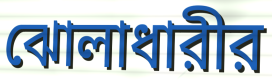
ঝোলাধারীর